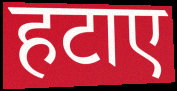
हटाए